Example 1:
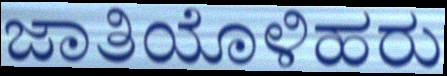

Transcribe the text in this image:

ಜಾತಿಯೊಳಿಹರು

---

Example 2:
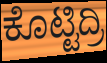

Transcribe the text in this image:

ಕೊಟ್ಟಿದ್ರಿ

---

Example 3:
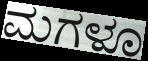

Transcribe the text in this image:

ಮಗಳೂ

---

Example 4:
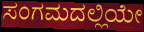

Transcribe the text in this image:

ಸಂಗಮದಲ್ಲಿಯೇ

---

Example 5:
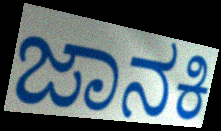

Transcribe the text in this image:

ಜಾನಕಿ